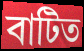
বাটিত